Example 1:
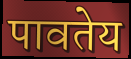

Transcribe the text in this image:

पावतेय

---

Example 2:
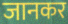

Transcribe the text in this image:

जानकर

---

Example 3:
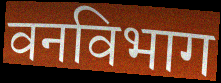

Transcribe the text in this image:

वनविभाग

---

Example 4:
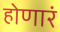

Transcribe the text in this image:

होणारं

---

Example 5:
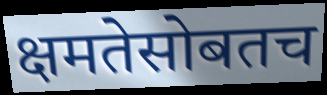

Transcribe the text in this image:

क्षमतेसोबतच